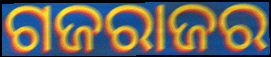
ଗଜରାଜର